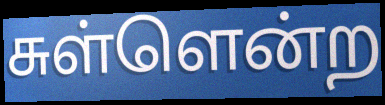
சுள்ளென்ற